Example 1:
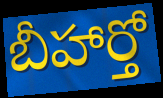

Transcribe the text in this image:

బీహార్తో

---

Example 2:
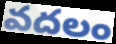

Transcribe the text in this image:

వదలం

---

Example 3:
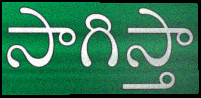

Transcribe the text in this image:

సాగిస్తా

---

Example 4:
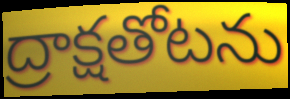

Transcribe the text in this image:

ద్రాక్షతోటను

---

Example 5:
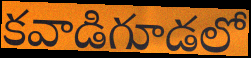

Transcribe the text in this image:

కవాడిగూడలో